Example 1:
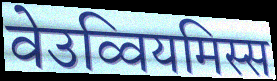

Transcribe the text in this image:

वेउव्वियमिस्स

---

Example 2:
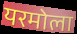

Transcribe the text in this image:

यरमोला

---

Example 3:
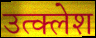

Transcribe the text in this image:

उत्क्लेश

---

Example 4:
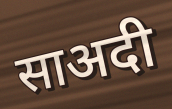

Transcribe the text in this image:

साअदी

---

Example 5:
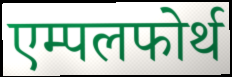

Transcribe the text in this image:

एम्पलफोर्थ